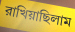
রাখিয়াছিলাম